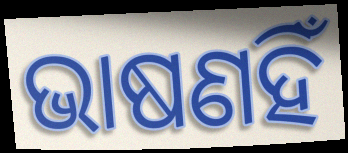
ଭାଷଣହିଁ